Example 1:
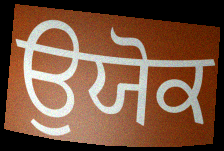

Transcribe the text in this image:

ਉਯੋਕ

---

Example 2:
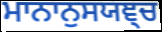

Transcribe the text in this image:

ਮਾਨਾਨੁਸਯਞ੍ਚ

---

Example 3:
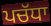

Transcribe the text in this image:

ਪਚੱਧਾ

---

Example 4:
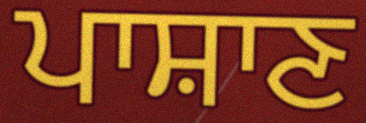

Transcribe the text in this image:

ਪਾਸ਼ਾਣ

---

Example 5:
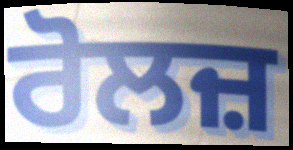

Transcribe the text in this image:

ਰੋਲਜ਼